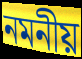
নমনীয়